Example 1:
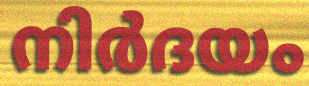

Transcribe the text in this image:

നിർദയം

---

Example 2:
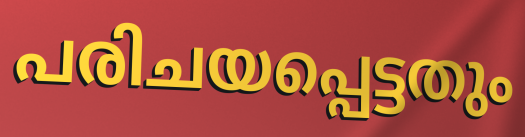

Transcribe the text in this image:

പരിചയപ്പെട്ടതും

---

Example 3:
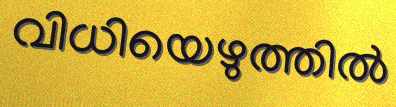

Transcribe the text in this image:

വിധിയെഴുത്തിൽ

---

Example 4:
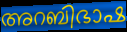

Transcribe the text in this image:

അറബിഭാഷ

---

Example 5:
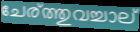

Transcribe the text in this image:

ചേര്ത്തുവച്ചാല്